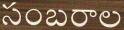
సంబరాల